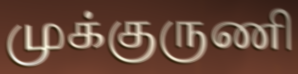
முக்குருணி